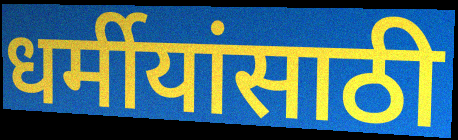
धर्मीयांसाठी